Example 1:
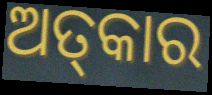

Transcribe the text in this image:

ଅତ୍‌କାର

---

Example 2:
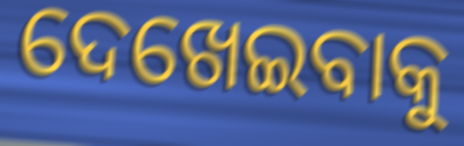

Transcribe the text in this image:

ଦେଖେଇବାକୁ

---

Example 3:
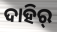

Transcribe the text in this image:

ଦାହିର୍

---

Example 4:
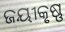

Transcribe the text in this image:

ଜୟୀକୃଷ୍ଣ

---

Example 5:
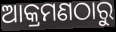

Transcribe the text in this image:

ଆକ୍ରମଣଠାରୁ